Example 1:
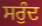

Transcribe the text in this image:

ਸਰੁੰਦ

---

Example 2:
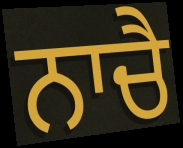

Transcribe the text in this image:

ਨਾਚੈ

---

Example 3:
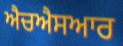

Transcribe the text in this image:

ਐਚਐਸਆਰ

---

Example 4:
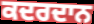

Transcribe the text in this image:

ਕਦਰਦਾਨ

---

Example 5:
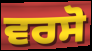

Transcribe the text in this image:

ਵਰਸੋ